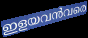
ഇളയവൻവരെ